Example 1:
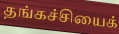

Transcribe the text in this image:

தங்கச்சியைக்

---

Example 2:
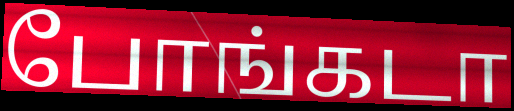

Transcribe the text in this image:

போங்கடா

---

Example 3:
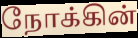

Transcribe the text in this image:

நோக்கின்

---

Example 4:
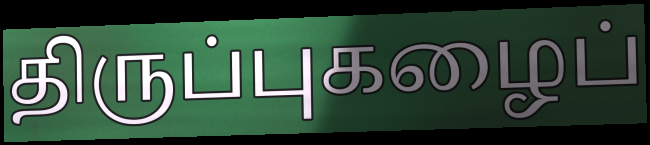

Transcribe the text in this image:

திருப்புகழைப்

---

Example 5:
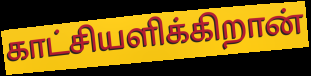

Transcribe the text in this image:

காட்சியளிக்கிறான்